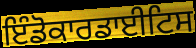
ਇੰਡੋਕਾਰਡਾਈਟਿਸ